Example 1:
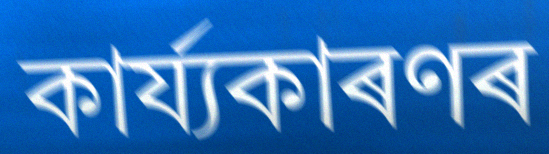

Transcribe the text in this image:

কাৰ্য্যকাৰণৰ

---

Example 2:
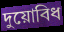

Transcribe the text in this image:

দুয়োবিধ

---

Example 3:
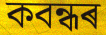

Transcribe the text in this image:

কবন্ধৰ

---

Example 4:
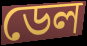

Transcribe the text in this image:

ডেল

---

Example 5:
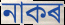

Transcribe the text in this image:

নাকৰ